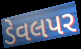
ડેવલપર